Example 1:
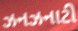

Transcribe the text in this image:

ઝનઝનાટી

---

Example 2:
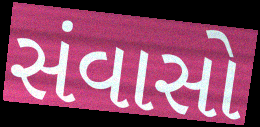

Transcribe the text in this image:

સંવાસો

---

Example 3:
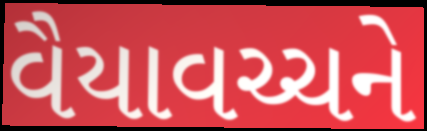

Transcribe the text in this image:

વૈયાવચ્ચને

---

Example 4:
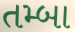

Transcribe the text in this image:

તમ્બા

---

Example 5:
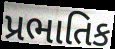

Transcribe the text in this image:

પ્રભાતિક